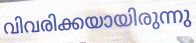
വിവരിക്കയായിരുന്നു